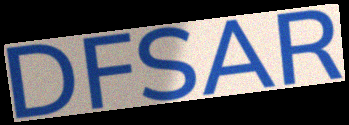
DFSAR